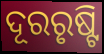
ଦୂରରୃଷ୍ଟି